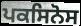
ਪਕਸਿਨੋਸ